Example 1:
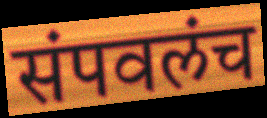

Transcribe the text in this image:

संपवलंच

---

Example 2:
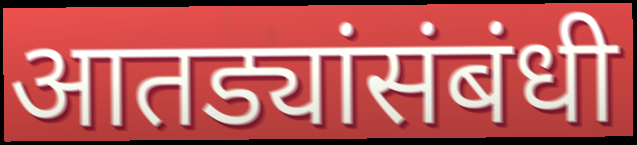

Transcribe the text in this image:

आतड्यांसंबंधी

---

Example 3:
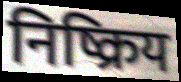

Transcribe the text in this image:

निष्क्रिय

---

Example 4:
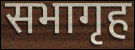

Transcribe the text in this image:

सभागृह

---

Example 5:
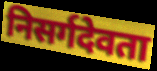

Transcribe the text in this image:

निसर्गदेवता